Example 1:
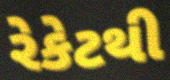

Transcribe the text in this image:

રેકેટથી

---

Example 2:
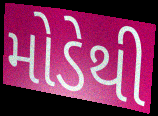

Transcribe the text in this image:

મોડેથી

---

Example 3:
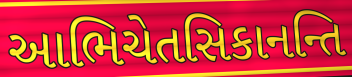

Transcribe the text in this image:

આભિચેતસિકાનન્તિ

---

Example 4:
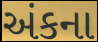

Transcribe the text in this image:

અંકના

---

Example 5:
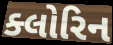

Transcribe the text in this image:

ક્લોરિન